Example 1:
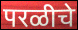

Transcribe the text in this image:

परळीचे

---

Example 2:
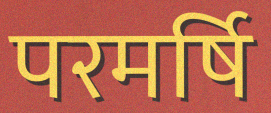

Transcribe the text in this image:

परमर्षि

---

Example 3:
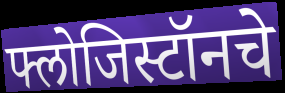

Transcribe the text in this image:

फ्लोजिस्टॉनचे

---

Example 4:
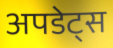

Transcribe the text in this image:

अपडेट्स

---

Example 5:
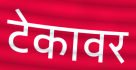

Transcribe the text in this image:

टेकावर